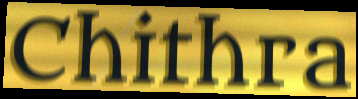
Chithra